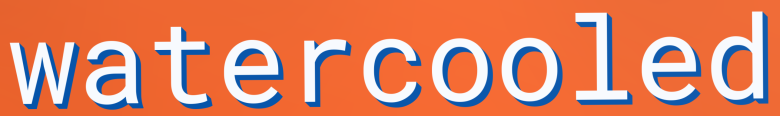
watercooled